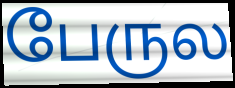
பேருல